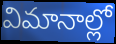
విమానాల్లో